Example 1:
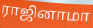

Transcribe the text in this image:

ராஜினாமா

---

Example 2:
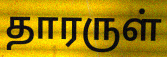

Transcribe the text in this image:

தாரருள்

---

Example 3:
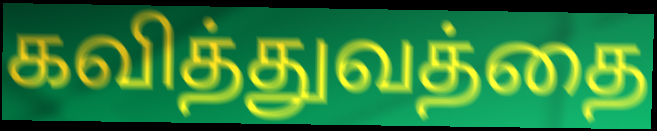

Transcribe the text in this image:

கவித்துவத்தை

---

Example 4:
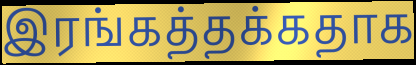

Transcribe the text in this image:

இரங்கத்தக்கதாக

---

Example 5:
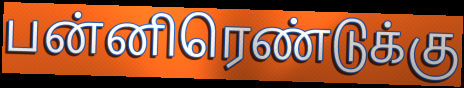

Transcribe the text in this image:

பன்னிரெண்டுக்கு